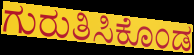
ಗುರುತಿಸಿಕೊಂಡ